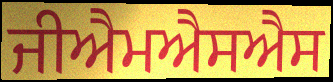
ਜੀਐਮਐਸਐਸ